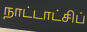
நாட்டாட்சிப்